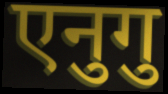
एनुगु